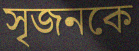
সৃজনকে